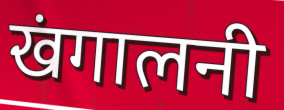
खंगालनी